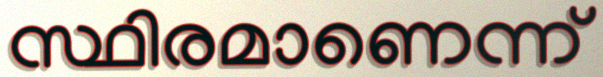
സ്ഥിരമാണെന്ന്